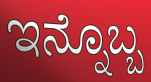
ಇನ್ನೊಬ್ಬ